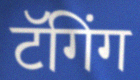
टॅगिंग